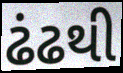
ઢંઢથી